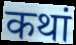
कथां